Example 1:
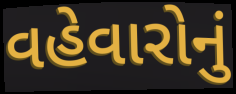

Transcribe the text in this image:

વહેવારોનું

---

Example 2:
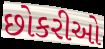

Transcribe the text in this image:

છોકરીઓ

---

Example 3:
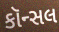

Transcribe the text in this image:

કૉન્સલ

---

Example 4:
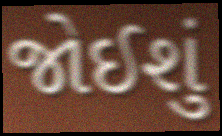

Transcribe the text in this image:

જોઈશું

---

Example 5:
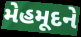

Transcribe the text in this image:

મેહમૂદને